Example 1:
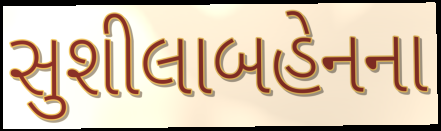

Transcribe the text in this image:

સુશીલાબહેનના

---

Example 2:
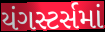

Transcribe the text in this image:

યંગસ્ટર્સમાં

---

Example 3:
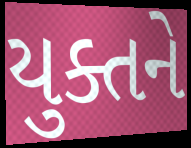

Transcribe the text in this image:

યુક્તને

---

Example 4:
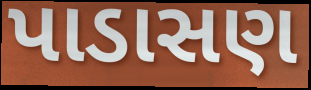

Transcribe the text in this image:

પાડાસણ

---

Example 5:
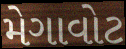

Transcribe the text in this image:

મેગાવોટ